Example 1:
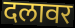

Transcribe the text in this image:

दलावर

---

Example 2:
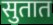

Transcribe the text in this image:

सुतात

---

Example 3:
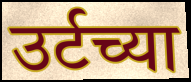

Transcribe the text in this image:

उर्टच्या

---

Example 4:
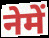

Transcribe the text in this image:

नेमें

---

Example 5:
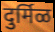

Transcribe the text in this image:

दुर्मिळ